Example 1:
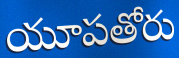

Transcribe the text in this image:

యూపతోరు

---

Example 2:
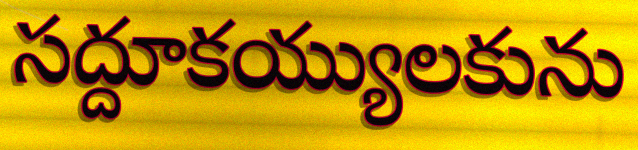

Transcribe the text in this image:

సద్దూకయ్యులకును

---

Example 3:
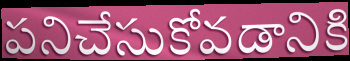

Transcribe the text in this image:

పనిచేసుకోవడానికి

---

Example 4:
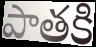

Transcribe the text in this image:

పాతకి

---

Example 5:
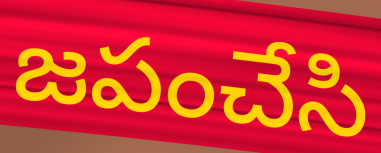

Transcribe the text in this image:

జపంచేసి